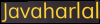
Javaharlal